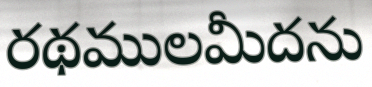
రథములమీదను